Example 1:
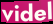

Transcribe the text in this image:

videl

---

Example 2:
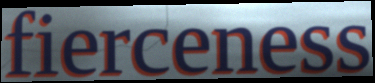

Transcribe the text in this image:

fierceness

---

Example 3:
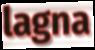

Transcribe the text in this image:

lagna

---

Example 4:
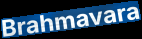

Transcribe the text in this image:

Brahmavara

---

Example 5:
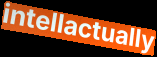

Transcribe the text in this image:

intellactually